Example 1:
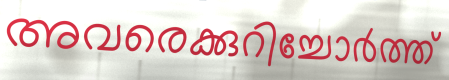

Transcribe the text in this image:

അവരെക്കുറിച്ചോർത്ത്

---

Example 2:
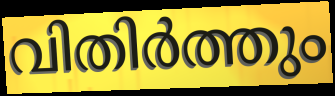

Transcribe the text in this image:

വിതിർത്തും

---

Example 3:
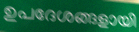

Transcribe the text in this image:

ഉപദേശങ്ങളായി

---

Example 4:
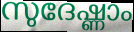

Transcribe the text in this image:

സുദേഷ്ണാം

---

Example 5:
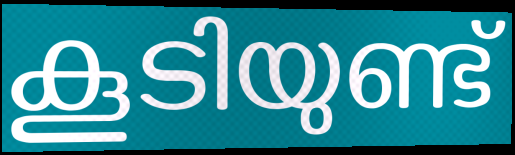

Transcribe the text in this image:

കൂടിയുണ്ട്